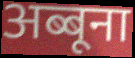
अब्बूना